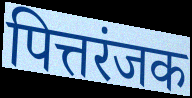
पित्तरंजक